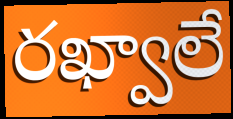
రఖ్వాలే